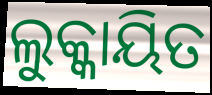
ଲୁକ୍କାୟିତ